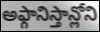
అఫ్గానిస్తాన్లోని